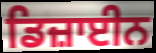
ਡਿਜ਼ਾਈਨ